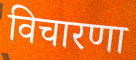
विचारणा